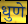
धुणे